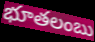
భూతలంబు